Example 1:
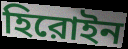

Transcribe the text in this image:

হিরোইন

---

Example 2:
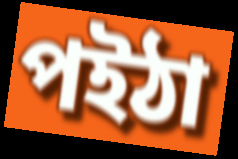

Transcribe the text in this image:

পইঠা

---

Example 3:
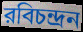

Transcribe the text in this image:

রবিচন্দ্রন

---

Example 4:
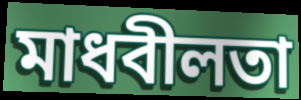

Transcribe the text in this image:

মাধবীলতা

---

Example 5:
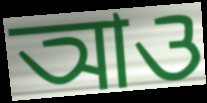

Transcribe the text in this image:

আও